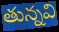
తున్నవి